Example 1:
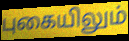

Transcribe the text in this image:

புகையிலும்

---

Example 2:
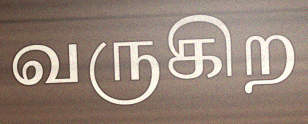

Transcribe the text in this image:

வருகிற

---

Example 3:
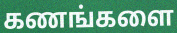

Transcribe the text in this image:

கணங்களை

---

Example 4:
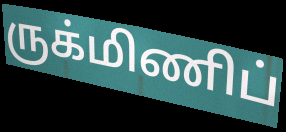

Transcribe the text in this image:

ருக்மிணிப்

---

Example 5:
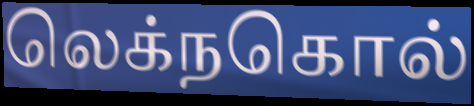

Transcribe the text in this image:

லெக்நகொல்